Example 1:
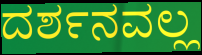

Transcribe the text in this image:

ದರ್ಶನವಲ್ಲ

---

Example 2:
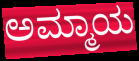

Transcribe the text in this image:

ಅಮ್ಮಾಯ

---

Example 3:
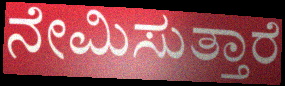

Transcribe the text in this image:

ನೇಮಿಸುತ್ತಾರೆ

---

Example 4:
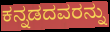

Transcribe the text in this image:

ಕನ್ನಡದವರನ್ನು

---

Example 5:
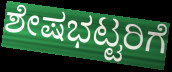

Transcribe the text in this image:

ಶೇಷಭಟ್ಟರಿಗೆ